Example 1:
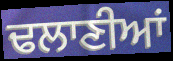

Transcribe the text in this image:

ਢਲਾਣੀਆਂ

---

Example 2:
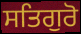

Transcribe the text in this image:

ਸਤਿਗੁਰੋ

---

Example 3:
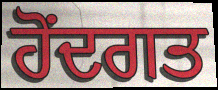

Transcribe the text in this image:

ਹੋਂਦਗਤ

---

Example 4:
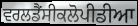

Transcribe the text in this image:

ਵਰਲਡੈਂਸੀਕਲੋਪੀਡੀਆ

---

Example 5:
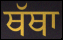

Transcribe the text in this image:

ਥੱਥਾ